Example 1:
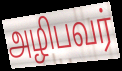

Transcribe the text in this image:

அழிபவர்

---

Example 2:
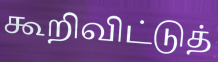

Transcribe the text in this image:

கூறிவிட்டுத்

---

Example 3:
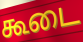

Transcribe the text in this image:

கூடை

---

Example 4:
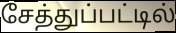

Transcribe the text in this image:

சேத்துப்பட்டில்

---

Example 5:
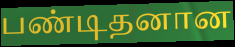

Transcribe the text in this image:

பண்டிதனான